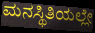
ಮನಸ್ಥಿತಿಯಲ್ಲೇ